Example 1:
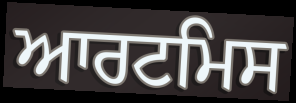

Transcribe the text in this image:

ਆਰਟਮਿਸ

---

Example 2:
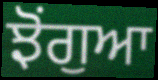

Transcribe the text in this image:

ਝੋਂਗੁਆ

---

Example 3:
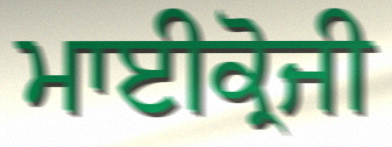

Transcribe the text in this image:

ਮਾਈਕ੍ਰੋਜੀ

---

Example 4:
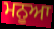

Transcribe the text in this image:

ਮਨੂਆ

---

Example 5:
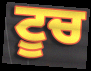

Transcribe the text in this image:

ਟੂਚ